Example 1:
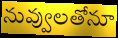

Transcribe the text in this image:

నువ్వులతోనూ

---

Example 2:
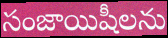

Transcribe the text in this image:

సంజాయిషీలను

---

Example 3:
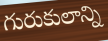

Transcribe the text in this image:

గురుకులాన్ని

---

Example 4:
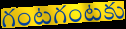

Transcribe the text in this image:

గంటగంటకు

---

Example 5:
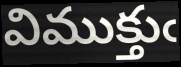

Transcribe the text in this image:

విముక్తుఁ